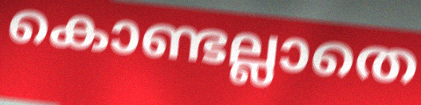
കൊണ്ടല്ലാതെ